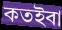
কতইবা